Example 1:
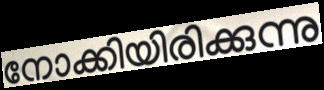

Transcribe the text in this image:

നോക്കിയിരിക്കുന്നു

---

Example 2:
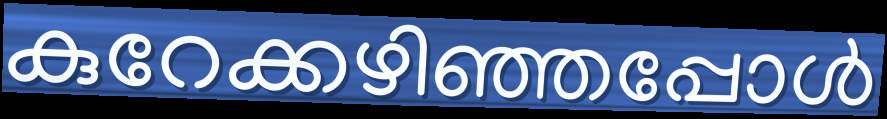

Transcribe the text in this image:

കുറേക്കഴിഞ്ഞപ്പോൾ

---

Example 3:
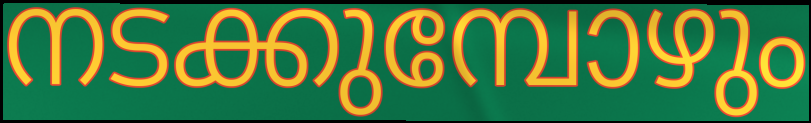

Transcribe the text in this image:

നടക്കുമ്പോഴും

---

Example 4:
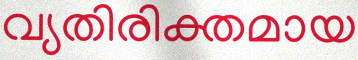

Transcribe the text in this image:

വ്യതിരിക്തമായ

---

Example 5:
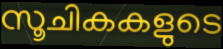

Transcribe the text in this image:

സൂചികകളുടെ